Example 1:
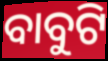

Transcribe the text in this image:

ବାବୁଟି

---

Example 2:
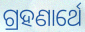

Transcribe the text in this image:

ଗ୍ରହଣାର୍ଥେ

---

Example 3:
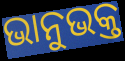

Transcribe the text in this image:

ଭାନୁଭକ୍ତ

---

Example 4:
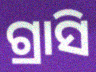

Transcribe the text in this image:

ଗ୍ରାସି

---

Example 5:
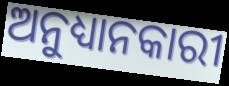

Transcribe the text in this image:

ଅନୁଧ୍ୟାନକାରୀ